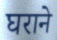
घराने